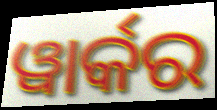
ୱାର୍କର